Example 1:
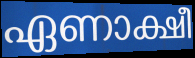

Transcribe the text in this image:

ഏണാക്ഷീ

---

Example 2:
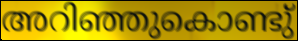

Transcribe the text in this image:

അറിഞ്ഞുകൊണ്ടു്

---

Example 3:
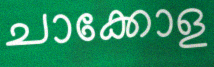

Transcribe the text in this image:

ചാക്കോള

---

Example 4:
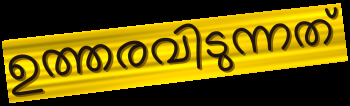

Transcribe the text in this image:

ഉത്തരവിടുന്നത്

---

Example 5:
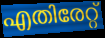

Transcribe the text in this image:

എതിരേറ്റ്